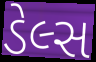
ડેલ્સ